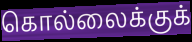
கொல்லைக்குக்